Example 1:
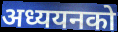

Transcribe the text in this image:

अध्ययनको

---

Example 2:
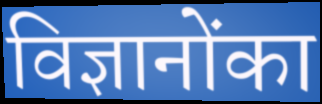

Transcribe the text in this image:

विज्ञानोंका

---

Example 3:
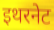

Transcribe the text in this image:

इथरनेट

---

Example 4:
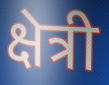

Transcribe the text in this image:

क्षेत्री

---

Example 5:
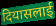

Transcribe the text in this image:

दियासलाई